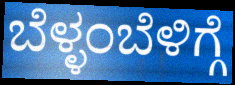
ಬೆಳ್ಳಂಬೆಳಿಗ್ಗೆ